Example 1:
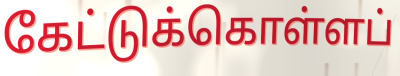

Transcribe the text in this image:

கேட்டுக்கொள்ளப்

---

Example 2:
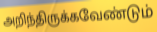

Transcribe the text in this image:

அறிந்திருக்கவேண்டும்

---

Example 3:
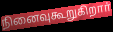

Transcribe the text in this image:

நினைவுகூறுகிறார்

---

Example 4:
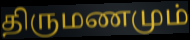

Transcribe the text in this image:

திருமணமும்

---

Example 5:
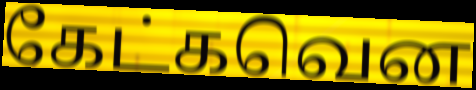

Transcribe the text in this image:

கேட்கவென